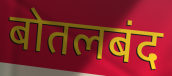
बोतलबंद